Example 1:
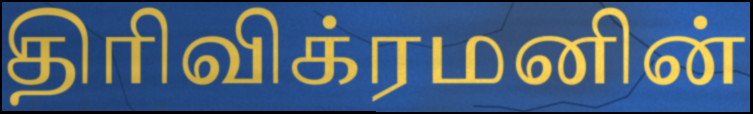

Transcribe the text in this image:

திரிவிக்ரமனின்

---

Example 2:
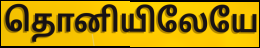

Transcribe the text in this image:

தொனியிலேயே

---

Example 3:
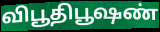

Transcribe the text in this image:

விபூதிபூஷண்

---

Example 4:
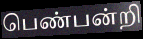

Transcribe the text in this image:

பெண்பன்றி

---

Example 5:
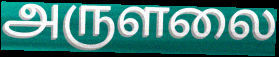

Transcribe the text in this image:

அருளலை